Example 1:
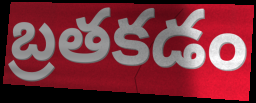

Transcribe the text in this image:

బ్రతకడం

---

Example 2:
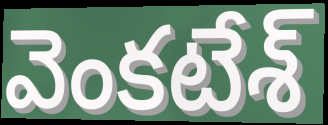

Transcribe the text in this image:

వెంకటేశ్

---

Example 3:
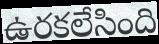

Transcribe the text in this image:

ఉరకలేసింది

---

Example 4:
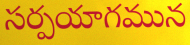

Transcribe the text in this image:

సర్పయాగమున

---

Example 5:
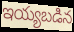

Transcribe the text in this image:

ఇయ్యబడిన